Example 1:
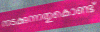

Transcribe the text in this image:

നടക്കുന്നതുകൊണ്ട്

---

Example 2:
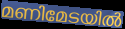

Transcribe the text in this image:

മണിമേടയിൽ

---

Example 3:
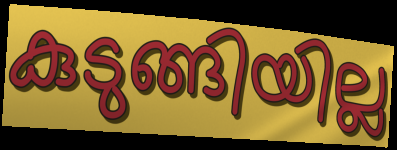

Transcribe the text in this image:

കുടുങ്ങിയില്ല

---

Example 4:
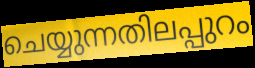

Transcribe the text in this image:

ചെയ്യുന്നതിലപ്പുറം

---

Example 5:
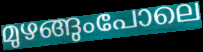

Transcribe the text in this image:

മുഴങ്ങുംപോലെ